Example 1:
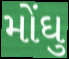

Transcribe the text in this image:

મોંઘુ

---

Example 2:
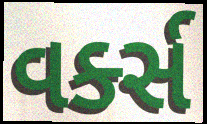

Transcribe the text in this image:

વર્ક્સ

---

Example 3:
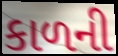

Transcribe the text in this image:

કાળની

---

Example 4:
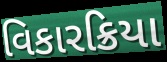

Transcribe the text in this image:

વિકારક્રિયા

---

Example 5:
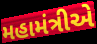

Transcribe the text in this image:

મહામંત્રીએ